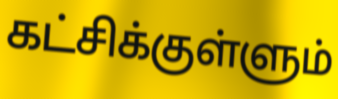
கட்சிக்குள்ளும்